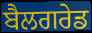
ਬੈਲਗਰੇਡ